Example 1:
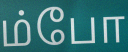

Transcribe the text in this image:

ம்போ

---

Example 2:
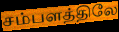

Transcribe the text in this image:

சம்பளத்திலே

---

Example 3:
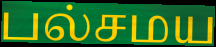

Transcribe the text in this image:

பல்சமய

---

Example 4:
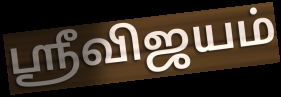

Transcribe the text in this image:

ஸ்ரீவிஜயம்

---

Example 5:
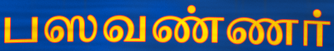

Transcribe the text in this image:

பஸவண்ணர்